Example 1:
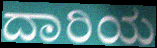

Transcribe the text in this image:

ದಾರಿಯ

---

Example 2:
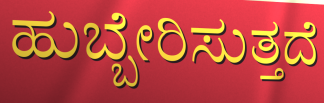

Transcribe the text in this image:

ಹುಬ್ಬೇರಿಸುತ್ತದೆ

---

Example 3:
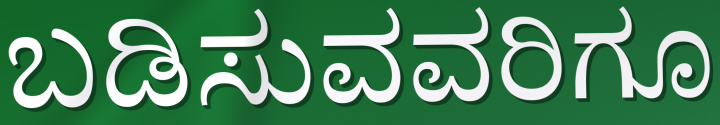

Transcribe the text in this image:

ಬಡಿಸುವವರಿಗೂ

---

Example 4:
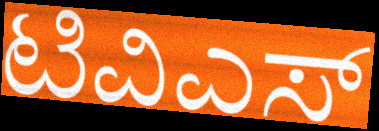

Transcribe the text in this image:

ಟಿವಿಎಸ್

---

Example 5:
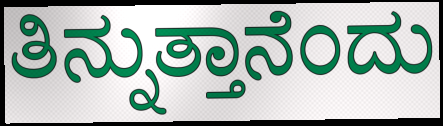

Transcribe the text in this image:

ತಿನ್ನುತ್ತಾನೆಂದು